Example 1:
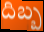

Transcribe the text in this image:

దిబ్బ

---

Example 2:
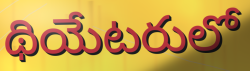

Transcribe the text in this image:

థియేటరులో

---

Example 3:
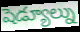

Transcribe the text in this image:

షెడ్యూల్ను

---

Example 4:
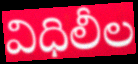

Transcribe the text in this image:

విధిలీల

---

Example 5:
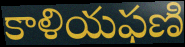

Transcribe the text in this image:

కాళియఫణి